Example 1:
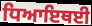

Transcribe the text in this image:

ਧਿਆਇਥਈ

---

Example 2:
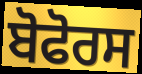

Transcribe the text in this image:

ਬੋਫੋਰਸ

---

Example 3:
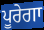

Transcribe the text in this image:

ਪੂਰੇਗਾ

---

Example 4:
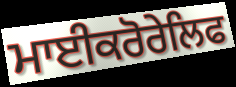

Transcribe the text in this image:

ਮਾਈਕਰੋਰੇਲਿਫ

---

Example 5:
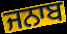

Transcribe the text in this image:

ਜਨਾਬ